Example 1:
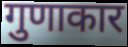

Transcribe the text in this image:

गुणाकार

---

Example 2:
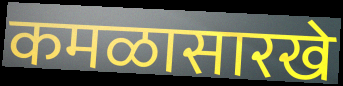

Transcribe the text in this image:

कमळासारखे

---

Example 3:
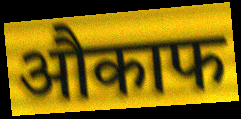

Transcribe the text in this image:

औकाफ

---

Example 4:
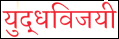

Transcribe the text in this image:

युद्धविजयी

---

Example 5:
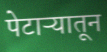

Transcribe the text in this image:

पेटाऱ्यातून